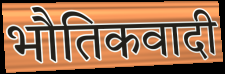
भौतिकवादी